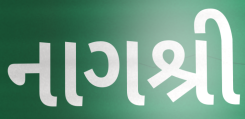
નાગશ્રી